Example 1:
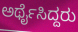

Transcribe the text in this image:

ಅರ್ಥೈಸಿದ್ದರು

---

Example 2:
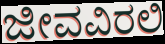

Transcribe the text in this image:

ಜೀವವಿರಲಿ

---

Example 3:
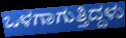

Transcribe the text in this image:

ಒಳಗಾಗುತ್ತಿದ್ದಳು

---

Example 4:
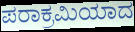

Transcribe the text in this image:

ಪರಾಕ್ರಮಿಯಾದ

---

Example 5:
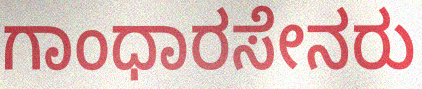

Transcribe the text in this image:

ಗಾಂಧಾರಸೇನರು